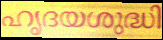
ഹൃദയശുദ്ധി